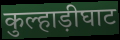
कुल्हाड़ीघाट